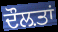
ਦੌਲ਼ਤਾਂ